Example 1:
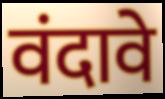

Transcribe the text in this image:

वंदावे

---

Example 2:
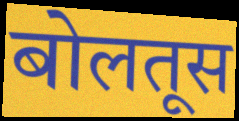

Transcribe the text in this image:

बोलतूस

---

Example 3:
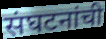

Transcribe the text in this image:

संघटनांची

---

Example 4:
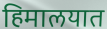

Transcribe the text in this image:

हिमालयात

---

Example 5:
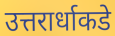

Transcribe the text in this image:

उत्तरार्धाकडे